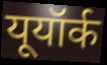
यूयॉर्क